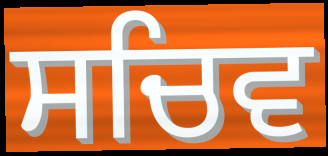
ਸਚਿਵ